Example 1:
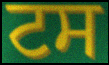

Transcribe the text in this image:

ਟਸ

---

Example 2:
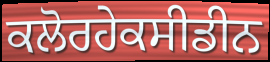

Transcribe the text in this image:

ਕਲੋਰਹੇਕਸੀਡੀਨ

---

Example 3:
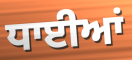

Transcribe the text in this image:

ਧਾਈਆਂ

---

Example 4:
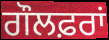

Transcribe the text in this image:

ਗੌਲਫ਼ਰਾਂ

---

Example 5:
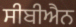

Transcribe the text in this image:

ਸੀਬੀਐਨ